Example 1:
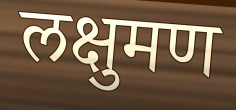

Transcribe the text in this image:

लक्षुमण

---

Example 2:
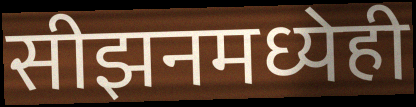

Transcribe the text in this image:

सीझनमध्येही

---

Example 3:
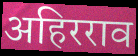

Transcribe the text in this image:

अहिरराव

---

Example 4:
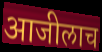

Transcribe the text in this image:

आजीलाच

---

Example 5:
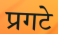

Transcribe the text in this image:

प्रगटे